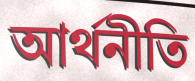
আর্থনীতি